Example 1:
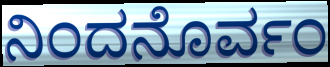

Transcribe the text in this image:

ನಿಂದನೊರ್ವಂ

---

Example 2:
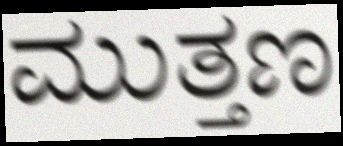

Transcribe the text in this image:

ಮುತ್ತಣ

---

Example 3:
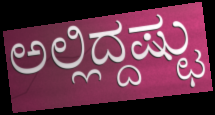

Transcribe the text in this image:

ಅಲ್ಲಿದ್ದಷ್ಟು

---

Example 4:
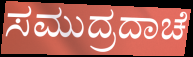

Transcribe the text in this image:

ಸಮುದ್ರದಾಚೆ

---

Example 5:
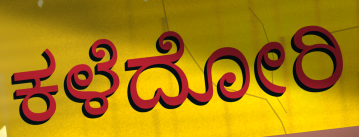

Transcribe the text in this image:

ಕಳೆದೋರಿ